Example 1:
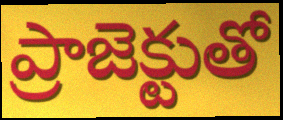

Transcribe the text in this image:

ప్రాజెక్టుతో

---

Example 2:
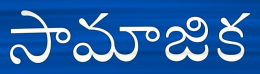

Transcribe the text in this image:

సామాజిక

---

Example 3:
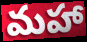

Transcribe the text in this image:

మహా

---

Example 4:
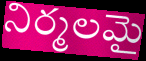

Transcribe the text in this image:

నిర్మలమై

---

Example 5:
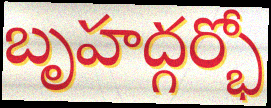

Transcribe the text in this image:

బృహద్గర్భో